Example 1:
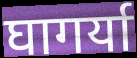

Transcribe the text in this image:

घागर्या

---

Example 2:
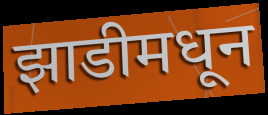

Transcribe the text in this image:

झाडीमधून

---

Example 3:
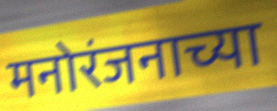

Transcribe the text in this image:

मनोरंजनाच्या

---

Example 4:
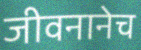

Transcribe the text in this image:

जीवनानेच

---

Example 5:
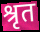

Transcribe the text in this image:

श्रृत